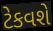
ટેકવશે